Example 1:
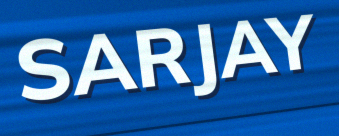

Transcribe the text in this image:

SARJAY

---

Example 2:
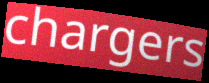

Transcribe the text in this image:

chargers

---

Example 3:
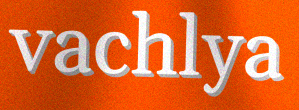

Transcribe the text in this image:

vachlya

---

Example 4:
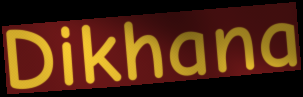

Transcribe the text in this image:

Dikhana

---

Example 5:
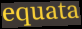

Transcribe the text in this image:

equata